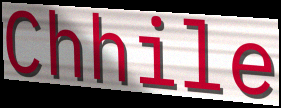
Chhile